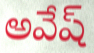
అవేష్